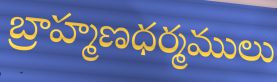
బ్రాహ్మణధర్మములు